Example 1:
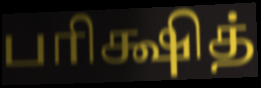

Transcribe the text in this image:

பரிக்ஷித்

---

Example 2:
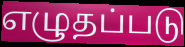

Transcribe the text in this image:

எழுதப்படு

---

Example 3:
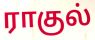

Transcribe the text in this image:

ராகுல்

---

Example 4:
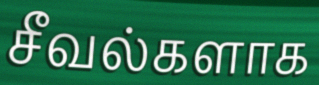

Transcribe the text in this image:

சீவல்களாக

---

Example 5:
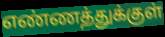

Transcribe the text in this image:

எண்ணத்துக்குள்